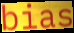
bias